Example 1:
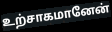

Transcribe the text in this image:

உற்சாகமானேன்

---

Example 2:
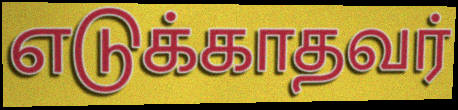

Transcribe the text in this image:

எடுக்காதவர்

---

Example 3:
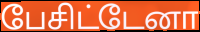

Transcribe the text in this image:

பேசிட்டேனா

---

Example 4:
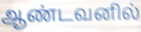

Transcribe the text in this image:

ஆண்டவனில்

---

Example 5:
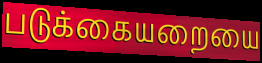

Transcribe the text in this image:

படுக்கையறையை